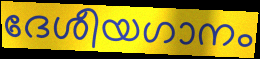
ദേശീയഗാനം